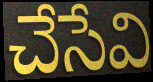
చేసేవి